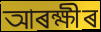
আৰক্ষীৰ